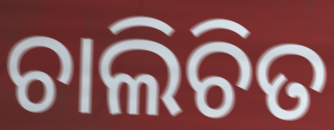
ଚାଲିଚିତ